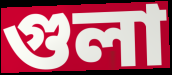
গুলা